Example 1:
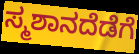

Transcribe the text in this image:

ಸ್ಮಶಾನದೆಡೆಗೆ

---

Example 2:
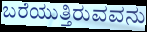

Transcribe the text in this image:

ಬರೆಯುತ್ತಿರುವವನು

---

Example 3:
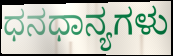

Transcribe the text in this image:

ಧನಧಾನ್ಯಗಳು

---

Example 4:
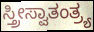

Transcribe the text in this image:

ಸ್ತ್ರೀಸ್ವಾತಂತ್ರ್ಯ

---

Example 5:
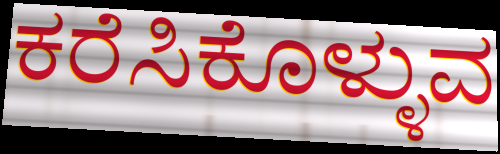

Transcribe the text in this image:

ಕರೆಸಿಕೊಳ್ಳುವ